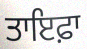
ਤਾਇਫ਼ਾ